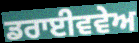
ਡਰਾਈਵਵੇਅ